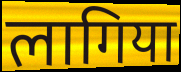
लागिया